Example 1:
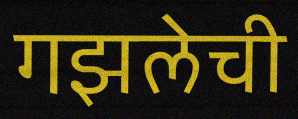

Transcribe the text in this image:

गझलेची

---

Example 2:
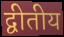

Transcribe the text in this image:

द्वीतीय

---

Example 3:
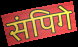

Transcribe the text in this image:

संपिगे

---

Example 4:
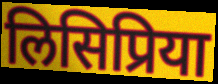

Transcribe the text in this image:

लिसिप्रिया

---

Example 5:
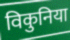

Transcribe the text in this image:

विकुनिया